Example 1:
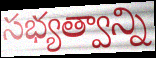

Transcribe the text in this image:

సభ్యత్వాన్ని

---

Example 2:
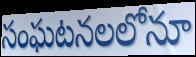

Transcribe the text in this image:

సంఘటనలలోనూ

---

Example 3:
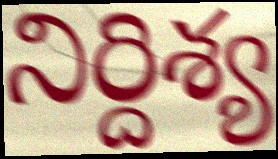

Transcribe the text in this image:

నిర్దిశ్య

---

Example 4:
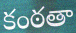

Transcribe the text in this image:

కంఠతా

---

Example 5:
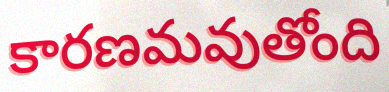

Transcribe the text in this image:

కారణమవుతోంది